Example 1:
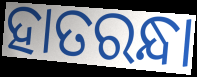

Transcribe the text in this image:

ହାତରନ୍ଧା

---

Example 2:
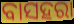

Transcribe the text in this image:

ବାସହରା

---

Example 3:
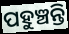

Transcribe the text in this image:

ପହୁଞ୍ଚନ୍ତି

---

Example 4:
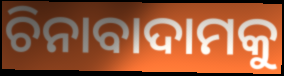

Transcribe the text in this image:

ଚିନାବାଦାମକୁ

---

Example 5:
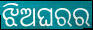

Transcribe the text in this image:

ଝିଅଘରର